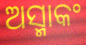
ଅସ୍ମାକଂ